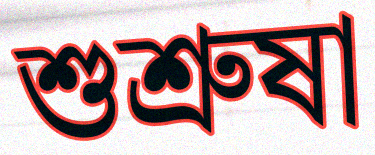
শুশ্ৰুষা